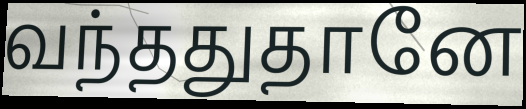
வந்ததுதானே